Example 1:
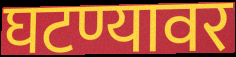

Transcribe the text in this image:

घटण्यावर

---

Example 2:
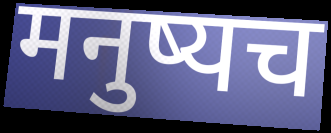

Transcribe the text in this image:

मनुष्यच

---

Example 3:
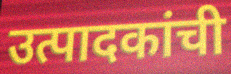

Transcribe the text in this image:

उत्पादकांची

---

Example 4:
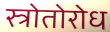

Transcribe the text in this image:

स्त्रोतोरोध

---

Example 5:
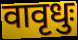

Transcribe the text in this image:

वावृधुः